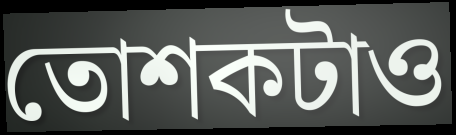
তোশকটাও